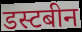
डस्टबीन